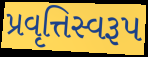
પ્રવૃત્તિસ્વરૂપ